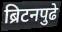
ब्रिटनपुढे